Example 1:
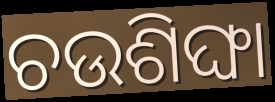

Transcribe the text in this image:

ଚଉଶିଙ୍ଘା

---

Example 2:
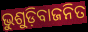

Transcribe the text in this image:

ଭୁଶୁଡ଼ିବାଜନିତ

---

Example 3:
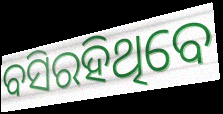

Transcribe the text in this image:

ବସିରହିଥିବେ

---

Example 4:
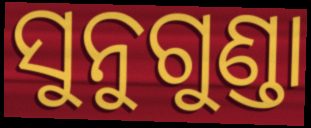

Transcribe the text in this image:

ସୁନୁଗୁଣ୍ଡା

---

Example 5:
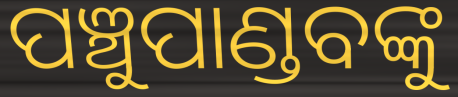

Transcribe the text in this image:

ପଞ୍ଚୁପାଣ୍ଡବଙ୍କୁ